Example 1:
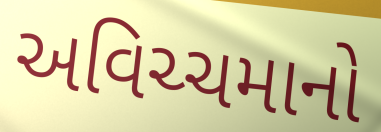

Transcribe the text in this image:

અવિચ્ચમાનો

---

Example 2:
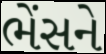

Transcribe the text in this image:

ભેંસને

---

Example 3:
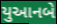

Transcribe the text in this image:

યુઆનબે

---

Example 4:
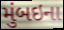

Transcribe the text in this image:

મુંબઇના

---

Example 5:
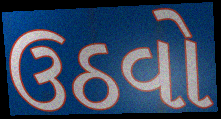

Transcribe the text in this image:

ઉઠવો